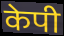
केपी